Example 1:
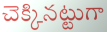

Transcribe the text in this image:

చెక్కినట్టుగా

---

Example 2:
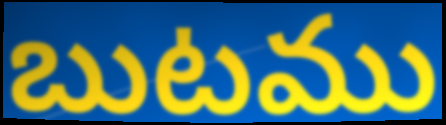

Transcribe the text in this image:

బుటము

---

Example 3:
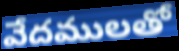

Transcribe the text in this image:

వేదములతో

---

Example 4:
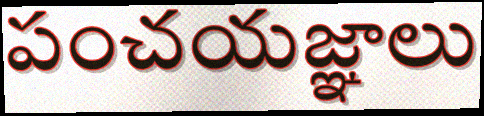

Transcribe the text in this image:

పంచయజ్ఞాలు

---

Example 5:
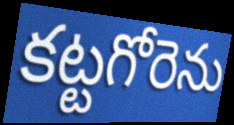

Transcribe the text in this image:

కట్టగోరెను